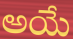
అయే